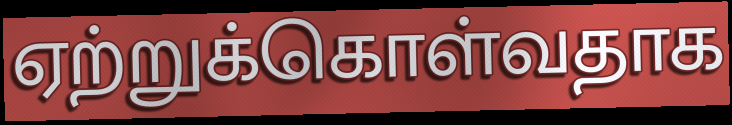
ஏற்றுக்கொள்வதாக